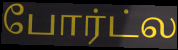
போர்ட்ல